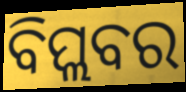
ବିପ୍ଲବର